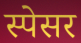
स्पेसर